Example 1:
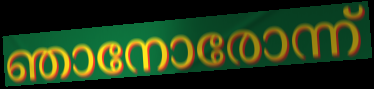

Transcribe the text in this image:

ഞാനോരോന്ന്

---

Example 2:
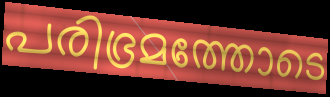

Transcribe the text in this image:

പരിഭ്രമത്തോടെ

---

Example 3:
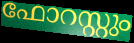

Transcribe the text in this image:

ഫോറസ്റ്റും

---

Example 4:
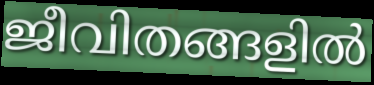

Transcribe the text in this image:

ജീവിതങ്ങളിൽ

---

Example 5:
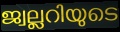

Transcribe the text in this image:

ജ്വല്ലറിയുടെ